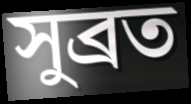
সুব্রত